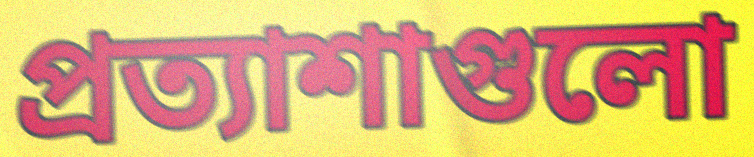
প্রত্যাশাগুলো